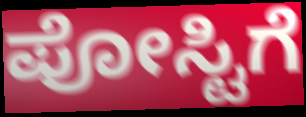
ಪೋಸ್ಟಿಗೆ